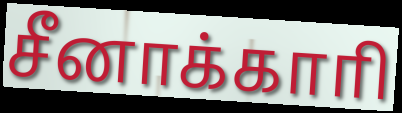
சீனாக்காரி